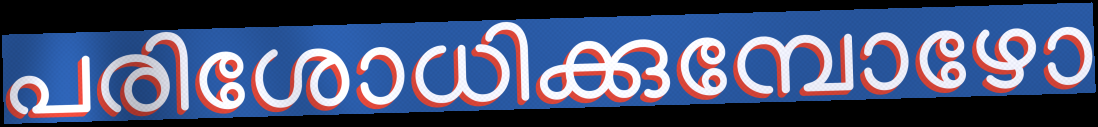
പരിശോധിക്കുമ്പോഴോ